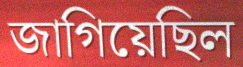
জাগিয়েছিল